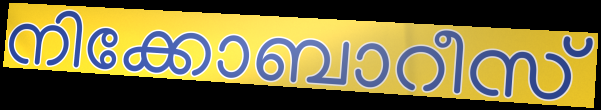
നിക്കോബാറീസ്